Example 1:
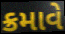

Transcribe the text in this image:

ક્રમાવે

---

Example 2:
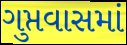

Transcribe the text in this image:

ગુપ્તવાસમાં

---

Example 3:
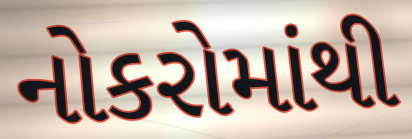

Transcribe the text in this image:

નોકરોમાંથી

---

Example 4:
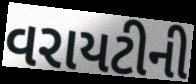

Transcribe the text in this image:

વરાયટીની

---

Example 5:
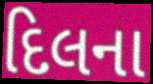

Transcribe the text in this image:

દિલના